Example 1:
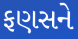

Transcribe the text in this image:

ફણસને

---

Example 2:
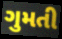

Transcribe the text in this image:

ગુમતી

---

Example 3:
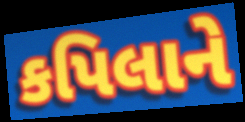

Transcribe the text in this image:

કપિલાને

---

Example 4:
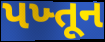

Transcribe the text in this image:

પખ્તૂન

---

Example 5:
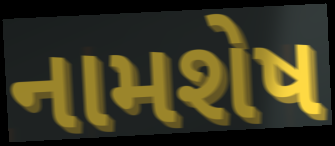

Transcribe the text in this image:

નામશેષ